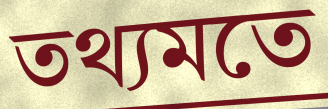
তথ্যমতে